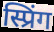
स्प्रिंग